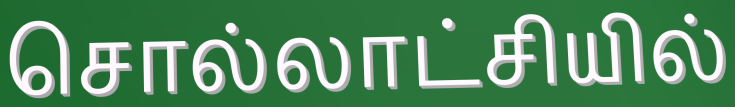
சொல்லாட்சியில்